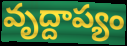
వృద్దాప్యం